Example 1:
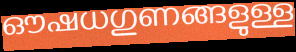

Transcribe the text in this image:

ഔഷധഗുണങ്ങളുള്ള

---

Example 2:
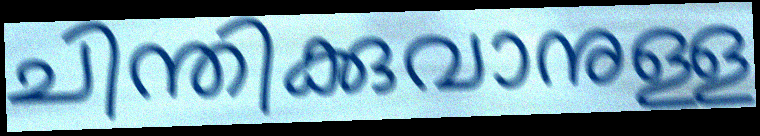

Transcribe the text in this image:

ചിന്തിക്കുവാനുള്ള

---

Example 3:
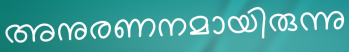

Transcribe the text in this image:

അനുരണനമായിരുന്നു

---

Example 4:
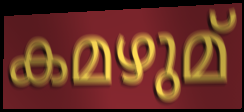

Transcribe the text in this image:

കമഴുമ്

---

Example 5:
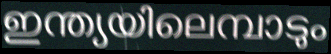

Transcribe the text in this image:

ഇന്ത്യയിലെമ്പാടും